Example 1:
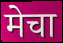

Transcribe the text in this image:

मेचा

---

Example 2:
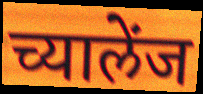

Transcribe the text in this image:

च्यालेंज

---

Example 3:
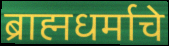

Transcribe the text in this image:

ब्राह्मधर्माचे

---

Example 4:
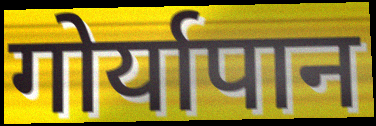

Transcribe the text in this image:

गोर्यापान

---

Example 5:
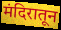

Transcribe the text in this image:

मंदिरातून